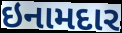
ઇનામદાર